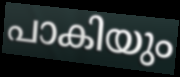
പാകിയും